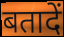
बतादें